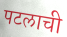
पटलाची